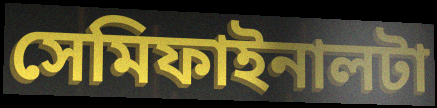
সেমিফাইনালটা